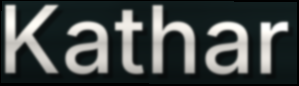
Kathar